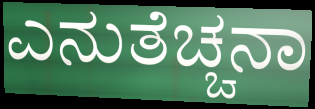
ಎನುತೆಚ್ಚನಾ